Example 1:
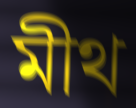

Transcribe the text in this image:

মীথ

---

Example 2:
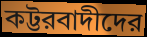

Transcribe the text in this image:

কট্টরবাদীদের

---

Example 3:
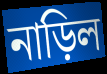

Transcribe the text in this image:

নাড়িল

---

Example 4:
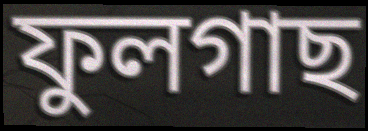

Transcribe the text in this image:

ফুলগাছ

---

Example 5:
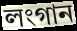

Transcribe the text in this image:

লংগান